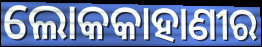
ଲୋକକାହାଣୀର